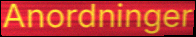
Anordninger